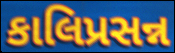
કાલિપ્રસન્ન